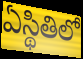
ఏస్థితిలో